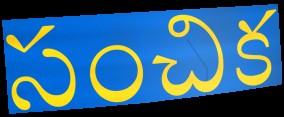
సంచిక